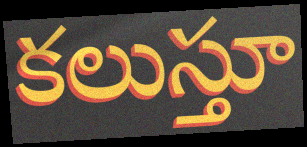
కలుస్తూ